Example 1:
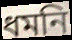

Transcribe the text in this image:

ধমনি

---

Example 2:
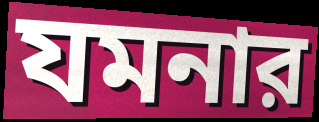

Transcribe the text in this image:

যমনার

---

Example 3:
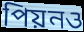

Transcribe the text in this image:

পিয়নও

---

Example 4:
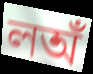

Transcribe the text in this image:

লঅঁ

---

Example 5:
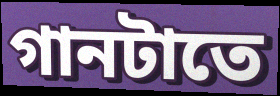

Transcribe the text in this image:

গানটাতে